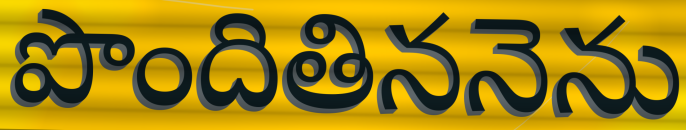
పొందితిననెను